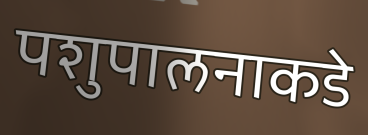
पशुपालनाकडे